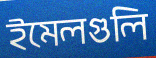
ইমেলগুলি